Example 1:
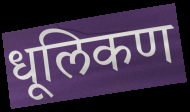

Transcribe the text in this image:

धूलिकण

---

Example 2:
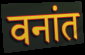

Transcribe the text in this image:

वनांत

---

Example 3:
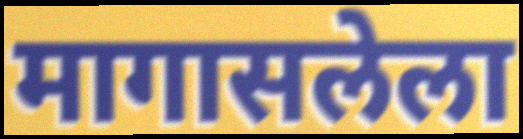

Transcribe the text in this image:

मागासलेला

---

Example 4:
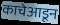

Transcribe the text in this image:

काचेआडून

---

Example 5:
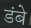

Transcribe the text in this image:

डंबे